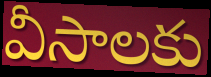
వీసాలకు